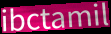
ibctamil